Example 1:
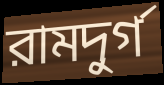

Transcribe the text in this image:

রামদুর্গ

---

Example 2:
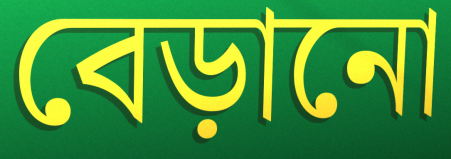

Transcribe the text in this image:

বেড়ানো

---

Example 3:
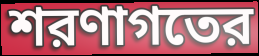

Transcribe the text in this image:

শরণাগতের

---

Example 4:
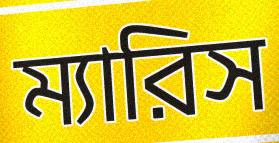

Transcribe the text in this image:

ম্যারিস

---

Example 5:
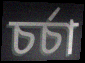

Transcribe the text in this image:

চর্চা